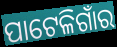
ପାଟେଳିଗାଁର